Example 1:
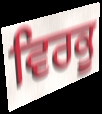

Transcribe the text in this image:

ਵਿਰਕੂ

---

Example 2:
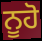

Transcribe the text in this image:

ਨੂਹੋ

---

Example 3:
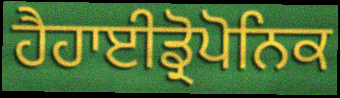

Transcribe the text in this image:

ਹੈਹਾਈਡ੍ਰੋਪੋਨਿਕ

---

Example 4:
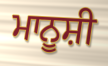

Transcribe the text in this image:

ਮਾਨੂਸ਼ੀ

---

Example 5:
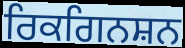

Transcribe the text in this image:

ਰਿਕਗਿਨਸ਼ਨ